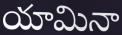
యామినా